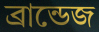
ব্রান্ডেজ